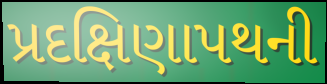
પ્રદક્ષિણાપથની